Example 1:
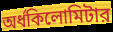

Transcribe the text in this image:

অর্ধকিলোমিটার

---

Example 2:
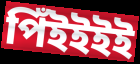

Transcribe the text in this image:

পিঁইইইই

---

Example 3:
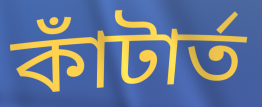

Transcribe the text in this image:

কাঁটার্ত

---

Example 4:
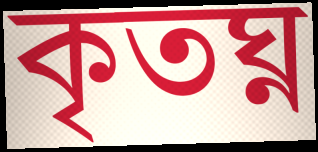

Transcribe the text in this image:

কৃতঘ্ন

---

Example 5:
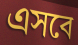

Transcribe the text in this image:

এসবে